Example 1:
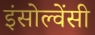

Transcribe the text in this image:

इंसोल्वेंसी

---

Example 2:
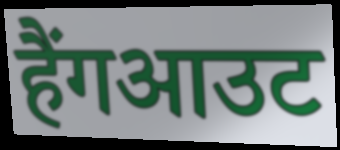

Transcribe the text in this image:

हैंगआउट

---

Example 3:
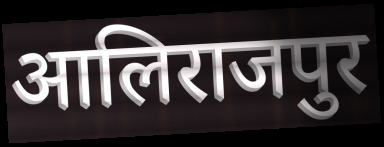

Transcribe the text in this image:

आलिराजपुर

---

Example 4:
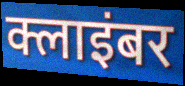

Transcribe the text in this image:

क्लाइंबर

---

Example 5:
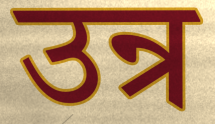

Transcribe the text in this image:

उन्र